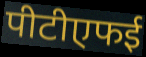
पीटीएफई